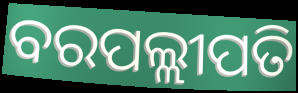
ବରପଲ୍ଲୀପତି